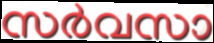
സർവസാ